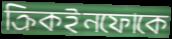
ক্রিকইনফোকে